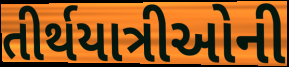
તીર્થયાત્રીઓની